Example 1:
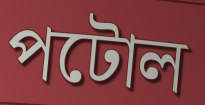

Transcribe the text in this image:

পটোল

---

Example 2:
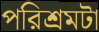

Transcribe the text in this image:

পরিশ্রমটা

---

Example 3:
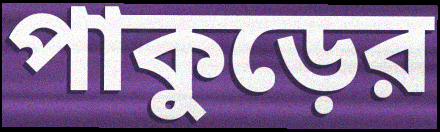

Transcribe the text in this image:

পাকুড়ের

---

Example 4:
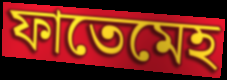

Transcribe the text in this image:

ফাতেমেহ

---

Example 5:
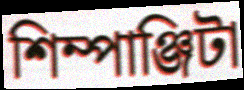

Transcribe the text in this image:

শিম্পাঞ্জিটা